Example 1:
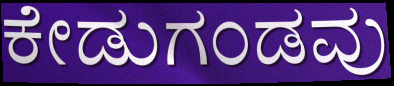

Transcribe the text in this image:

ಕೇಡುಗಂಡವು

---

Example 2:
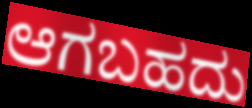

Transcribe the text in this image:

ಆಗಬಹದು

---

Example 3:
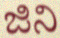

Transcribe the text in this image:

ಜಿನಿ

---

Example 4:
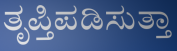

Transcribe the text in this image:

ತೃಪ್ತಿಪಡಿಸುತ್ತಾ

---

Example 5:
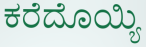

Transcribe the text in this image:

ಕರೆದೊಯ್ಯಿ